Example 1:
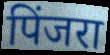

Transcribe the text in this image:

पिंजरा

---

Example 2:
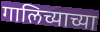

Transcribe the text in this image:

गालिच्याच्या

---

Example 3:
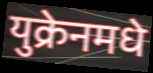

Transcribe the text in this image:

युक्रेनमधे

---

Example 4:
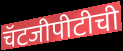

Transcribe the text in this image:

चॅटजीपीटीची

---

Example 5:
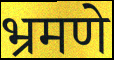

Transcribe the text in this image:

भ्रमणे